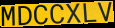
MDCCXLV